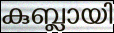
കുബ്ലായി